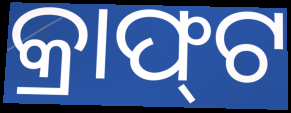
କ୍ରାଫ୍‌ଟ